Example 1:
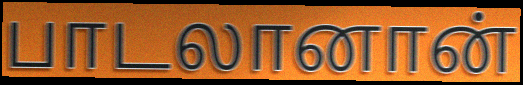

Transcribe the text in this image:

பாடலானான்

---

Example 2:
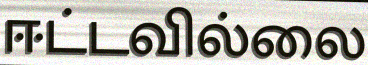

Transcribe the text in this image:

ஈட்டவில்லை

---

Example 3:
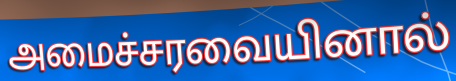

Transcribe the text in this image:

அமைச்சரவையினால்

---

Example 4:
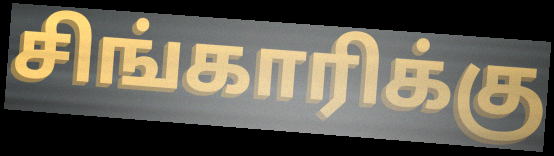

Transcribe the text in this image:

சிங்காரிக்கு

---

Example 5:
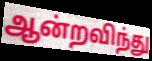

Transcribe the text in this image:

ஆன்றவிந்து